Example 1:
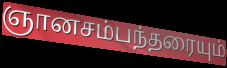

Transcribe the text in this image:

ஞானசம்பந்தரையும்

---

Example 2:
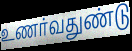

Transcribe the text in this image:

உணர்வதுண்டு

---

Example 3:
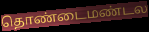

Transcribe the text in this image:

தொண்டைமண்டல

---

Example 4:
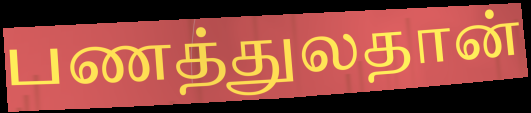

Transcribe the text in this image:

பணத்துலதான்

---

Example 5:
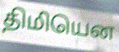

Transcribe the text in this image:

திமியென